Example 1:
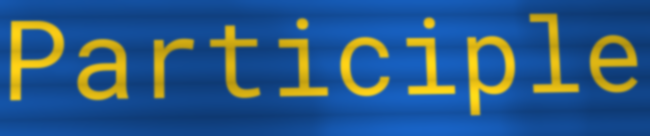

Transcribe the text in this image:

Participle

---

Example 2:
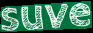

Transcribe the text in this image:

suve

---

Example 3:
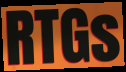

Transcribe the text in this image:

RTGs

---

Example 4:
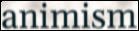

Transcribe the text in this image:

animism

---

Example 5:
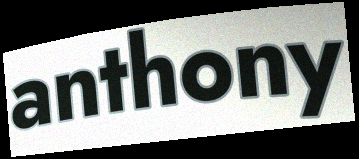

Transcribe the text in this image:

anthony